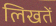
लिखतें